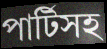
পার্টিসহ